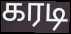
கரடி